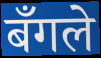
बँगले